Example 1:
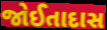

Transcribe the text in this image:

જોઈતાદાસ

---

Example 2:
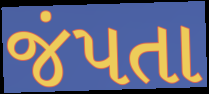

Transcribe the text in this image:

જંપતા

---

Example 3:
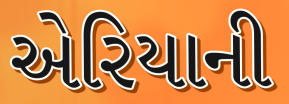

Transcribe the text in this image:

એરિયાની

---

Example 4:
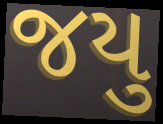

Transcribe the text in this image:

જયુ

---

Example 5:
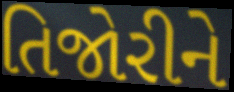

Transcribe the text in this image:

તિજોરીને